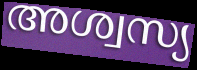
അശ്വസ്യ